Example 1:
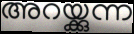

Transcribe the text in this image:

അറയ്ക്കുന്ന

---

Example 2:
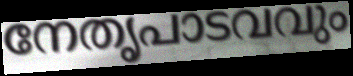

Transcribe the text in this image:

നേതൃപാടവവും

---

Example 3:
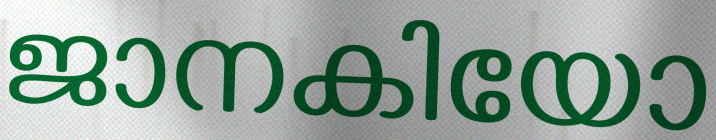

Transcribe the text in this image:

ജാനകിയോ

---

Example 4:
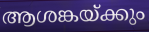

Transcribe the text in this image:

ആശങ്കയ്ക്കും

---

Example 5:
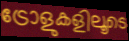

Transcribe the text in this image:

ട്രോളുകളിലൂടെ